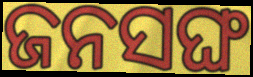
ଜନସଙ୍ଘ